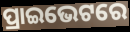
ପ୍ରାଇଭେଟରେ